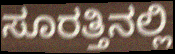
ಸೂರತ್ತಿನಲ್ಲಿ